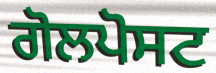
ਗੋਲਪੋਸਟ